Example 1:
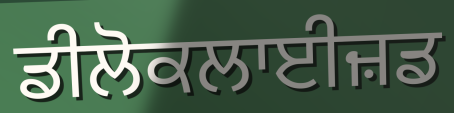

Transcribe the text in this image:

ਡੀਲੋਕਲਾਈਜ਼ਡ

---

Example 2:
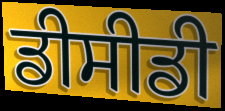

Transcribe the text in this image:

ਡੀਸੀਡੀ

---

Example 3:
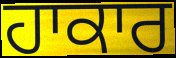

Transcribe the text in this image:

ਹਾਕਾਰ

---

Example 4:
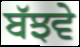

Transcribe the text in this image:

ਬੱਝਵੇ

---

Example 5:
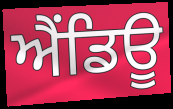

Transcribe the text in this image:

ਐਂਡਿਊ